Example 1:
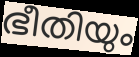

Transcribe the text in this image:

ഭീതിയും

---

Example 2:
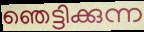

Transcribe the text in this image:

ഞെട്ടിക്കുന്ന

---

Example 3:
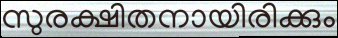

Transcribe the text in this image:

സുരക്ഷിതനായിരിക്കും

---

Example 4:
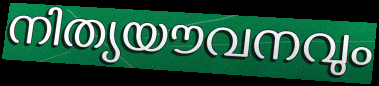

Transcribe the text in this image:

നിത്യയൗവനവും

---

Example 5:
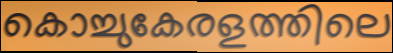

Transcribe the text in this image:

കൊച്ചുകേരളത്തിലെ